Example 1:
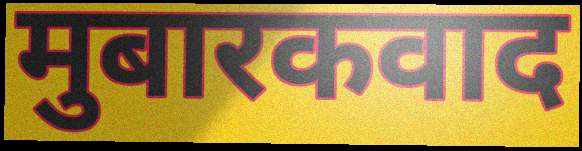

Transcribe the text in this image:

मुबारकवाद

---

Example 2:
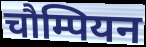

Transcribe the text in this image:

चौम्पियन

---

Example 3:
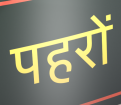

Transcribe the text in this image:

पहरों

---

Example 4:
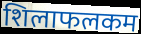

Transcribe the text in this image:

शिलाफलकम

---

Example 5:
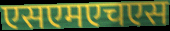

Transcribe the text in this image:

एसएमएचएस